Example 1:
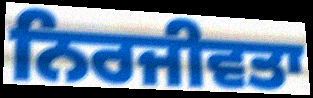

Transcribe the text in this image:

ਨਿਰਜੀਵਤਾ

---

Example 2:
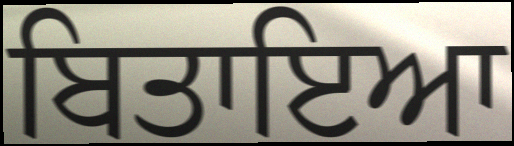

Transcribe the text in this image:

ਬਿਤਾਇਆ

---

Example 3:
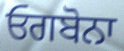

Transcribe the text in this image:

ਓਗਬੋਨਾ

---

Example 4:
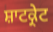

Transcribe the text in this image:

ਸ਼ਾਟਕ੍ਰੇਟ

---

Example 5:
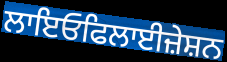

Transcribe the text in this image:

ਲਾਇਓਫਿਲਾਈਜ਼ੇਸ਼ਨ